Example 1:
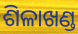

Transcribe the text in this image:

ଶିଳାଖଣ୍ଡ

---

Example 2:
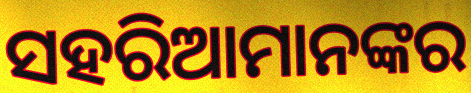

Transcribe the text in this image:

ସହରିଆମାନଙ୍କର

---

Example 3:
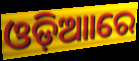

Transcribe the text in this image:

ଓଡ଼ିଆାରେ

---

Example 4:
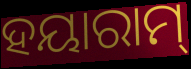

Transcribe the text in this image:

ହୟାରାମ୍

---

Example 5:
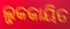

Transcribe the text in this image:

ଲୁକକାୟିତ